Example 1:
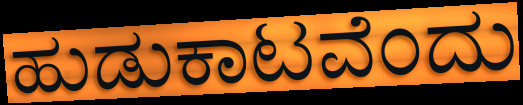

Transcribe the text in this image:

ಹುಡುಕಾಟವೆಂದು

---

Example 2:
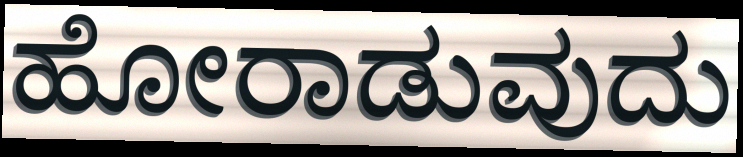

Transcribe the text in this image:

ಹೋರಾಡುವುದು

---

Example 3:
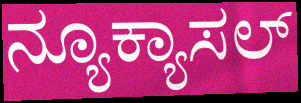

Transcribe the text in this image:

ನ್ಯೂಕ್ಯಾಸಲ್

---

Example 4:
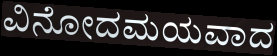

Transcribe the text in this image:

ವಿನೋದಮಯವಾದ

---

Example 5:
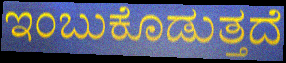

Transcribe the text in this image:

ಇಂಬುಕೊಡುತ್ತದೆ